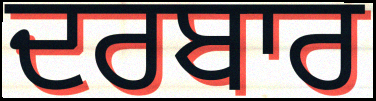
ਦਰਬਾਰ